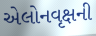
એલોનવૃક્ષની